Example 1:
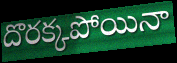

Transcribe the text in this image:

దొరక్కపోయినా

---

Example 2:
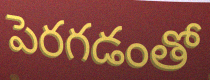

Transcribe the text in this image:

పెరగడంతో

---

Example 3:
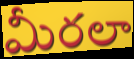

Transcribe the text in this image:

మీరలా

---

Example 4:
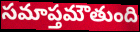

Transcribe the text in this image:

సమాప్తమౌతుంది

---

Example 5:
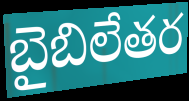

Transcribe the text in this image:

బైబిలేతర